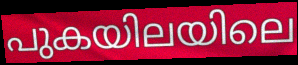
പുകയിലയിലെ